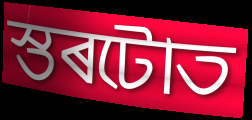
স্তৰটোত